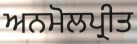
ਅਨਮੋਲਪ੍ਰੀਤ